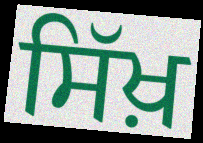
ਸਿੱਖ਼